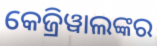
କେଜ୍ରିୱାଲଙ୍କର